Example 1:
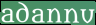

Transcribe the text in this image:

adannu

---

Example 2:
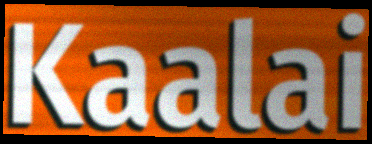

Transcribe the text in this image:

Kaalai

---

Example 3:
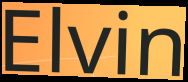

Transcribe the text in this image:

Elvin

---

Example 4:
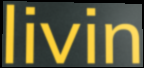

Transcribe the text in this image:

livin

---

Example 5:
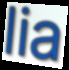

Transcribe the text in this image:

lia